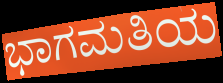
ಭಾಗಮತಿಯ